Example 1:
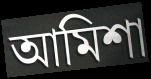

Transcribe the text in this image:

আমিশা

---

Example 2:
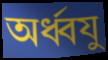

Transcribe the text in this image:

অর্ধ্বযু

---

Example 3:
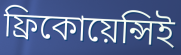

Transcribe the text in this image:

ফ্রিকোয়েন্সিই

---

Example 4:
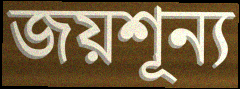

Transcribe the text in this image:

জয়শূন্য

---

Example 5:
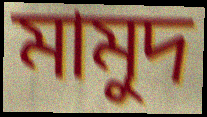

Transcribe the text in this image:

মামুদ